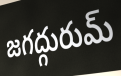
జగద్గురుమ్